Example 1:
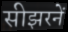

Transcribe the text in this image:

सीझरनें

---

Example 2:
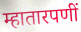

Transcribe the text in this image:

म्हातारपणीं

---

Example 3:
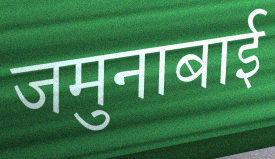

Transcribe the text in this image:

जमुनाबाई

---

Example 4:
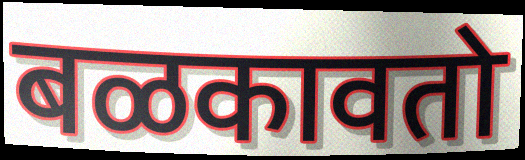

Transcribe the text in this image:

बळकावतो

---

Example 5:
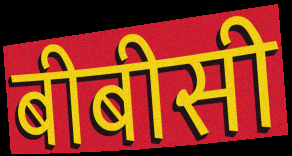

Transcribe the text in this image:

बीबीसी